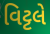
વિટ્ટલે